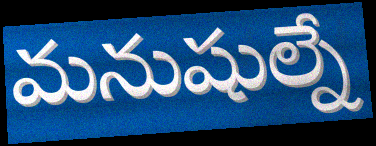
మనుషుల్నే